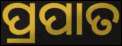
ପ୍ରପାତ